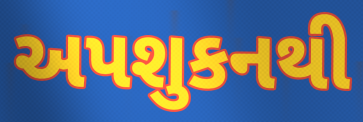
અપશુકનથી